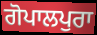
ਗੋਪਾਲਪੁਰਾ